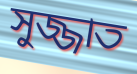
সুজ্জাত